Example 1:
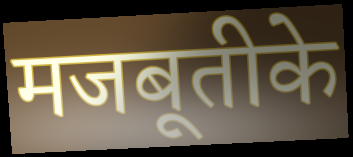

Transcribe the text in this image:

मजबूतीके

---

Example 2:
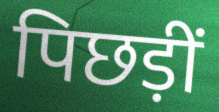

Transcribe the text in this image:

पिछड़ीं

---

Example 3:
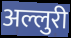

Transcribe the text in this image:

अल्लुरी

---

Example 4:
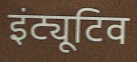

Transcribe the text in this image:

इंट्यूटिव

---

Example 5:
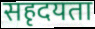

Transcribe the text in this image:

सहृदयता